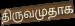
திருவமுதாக